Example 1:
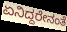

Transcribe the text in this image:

ಏನಿದ್ದರೇನಂತೆ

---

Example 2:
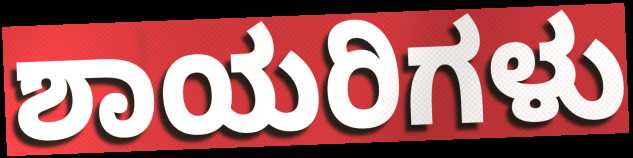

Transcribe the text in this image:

ಶಾಯರಿಗಳು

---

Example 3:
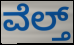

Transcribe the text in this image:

ವೆಲ್ತ್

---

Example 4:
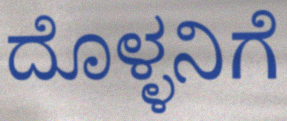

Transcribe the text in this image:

ದೊಳ್ಳನಿಗೆ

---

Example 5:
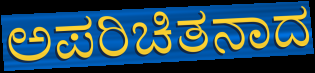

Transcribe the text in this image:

ಅಪರಿಚಿತನಾದ